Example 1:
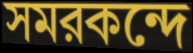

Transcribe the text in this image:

সমরকন্দে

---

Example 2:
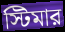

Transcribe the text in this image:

স্টিমার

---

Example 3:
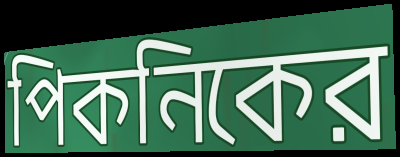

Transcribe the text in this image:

পিকনিকের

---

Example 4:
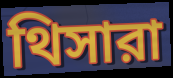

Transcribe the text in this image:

থিসারা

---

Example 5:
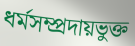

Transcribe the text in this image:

ধর্মসম্প্রদায়ভুক্ত